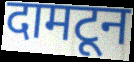
दामटून